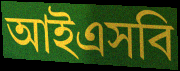
আইএসবি